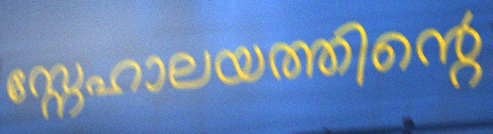
സ്നേഹാലയത്തിന്റെ